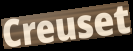
Creuset